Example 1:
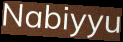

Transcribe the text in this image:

Nabiyyu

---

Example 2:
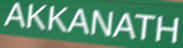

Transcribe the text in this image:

AKKANATH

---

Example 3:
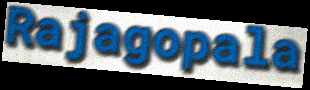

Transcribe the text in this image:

Rajagopala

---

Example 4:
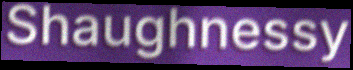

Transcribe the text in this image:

Shaughnessy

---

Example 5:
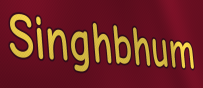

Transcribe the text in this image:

Singhbhum